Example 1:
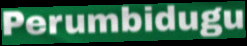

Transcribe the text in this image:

Perumbidugu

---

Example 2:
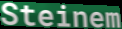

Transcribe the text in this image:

Steinem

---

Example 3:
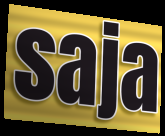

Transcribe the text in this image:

saja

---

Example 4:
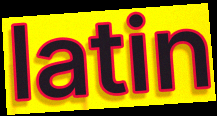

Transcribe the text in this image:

latin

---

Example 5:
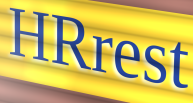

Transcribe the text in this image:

HRrest